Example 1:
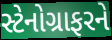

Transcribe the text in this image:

સ્ટેનોગ્રાફરને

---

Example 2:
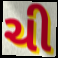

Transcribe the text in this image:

ચી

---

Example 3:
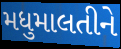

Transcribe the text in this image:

મધુમાલતીને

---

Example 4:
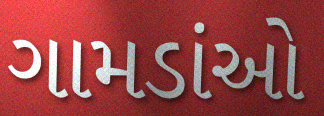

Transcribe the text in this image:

ગામડાંઓ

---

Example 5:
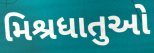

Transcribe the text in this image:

મિશ્રધાતુઓ